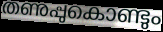
തണുപ്പുകൊണ്ടും